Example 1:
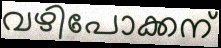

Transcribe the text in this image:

വഴിപോക്കന്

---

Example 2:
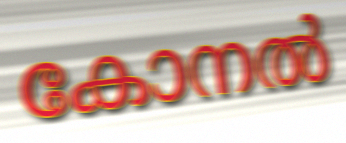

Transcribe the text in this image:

കോനൽ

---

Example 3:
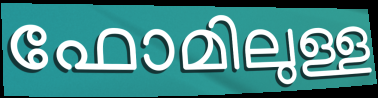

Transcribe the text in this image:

ഫോമിലുള്ള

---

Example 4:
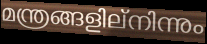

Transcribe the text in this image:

മന്ത്രങ്ങളില്നിന്നും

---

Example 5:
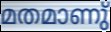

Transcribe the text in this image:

മതമാണു്